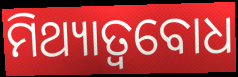
ମିଥ୍ୟାତ୍ୱବୋଧ